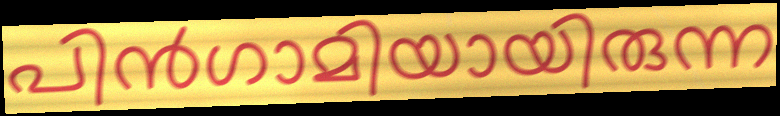
പിൻഗാമിയായിരുന്ന